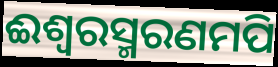
ଈଶ୍ଵରସ୍ମରଣମପି